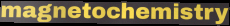
magnetochemistry